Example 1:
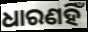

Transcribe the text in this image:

ଧାରଣହିଁ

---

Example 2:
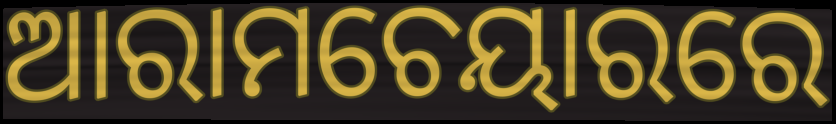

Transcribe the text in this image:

ଆରାମଚେୟାରରେ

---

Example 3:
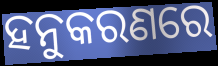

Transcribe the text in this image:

ହନୁକରଣରେ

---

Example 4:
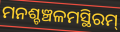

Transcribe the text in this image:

ମନଶ୍ଚଞ୍ଚଳମସ୍ଥିରମ୍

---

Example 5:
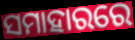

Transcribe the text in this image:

ସମାହାରରେ